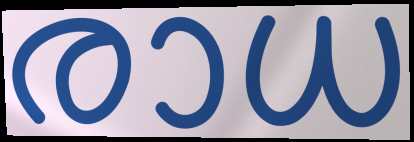
രാധ